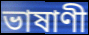
ভাষাণী